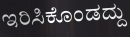
ಇರಿಸಿಕೊಂಡದ್ದು